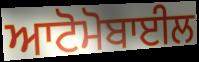
ਆਟੋਮੋਬਾਈਲ